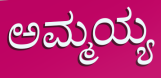
ಅಮ್ಮಯ್ಯ